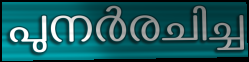
പുനർരചിച്ച